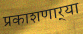
प्रकाशणार्या